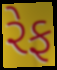
રેફ